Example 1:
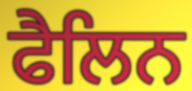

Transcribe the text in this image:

ਫੈਲਿਨ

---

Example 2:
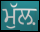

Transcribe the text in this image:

ਮੁੱਲ਼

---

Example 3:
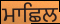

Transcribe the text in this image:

ਮਾਛਿਲ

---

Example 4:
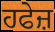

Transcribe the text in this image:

ਹਫੇਜ਼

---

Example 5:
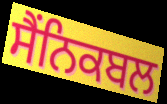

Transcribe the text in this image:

ਸੈੰਨਿਕਬਲ